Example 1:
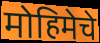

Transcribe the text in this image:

मोहिमेचे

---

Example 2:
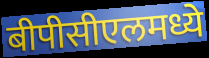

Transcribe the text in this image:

बीपीसीएलमध्ये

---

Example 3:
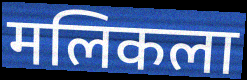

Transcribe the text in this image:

मलिकला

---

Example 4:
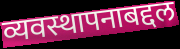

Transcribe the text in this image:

व्यवस्थापनाबद्दल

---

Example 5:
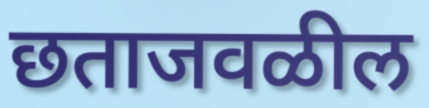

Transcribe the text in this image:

छताजवळील